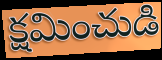
క్షమించుడి